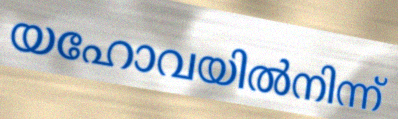
യഹോവയിൽനിന്ന്